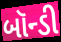
બૉન્ડી